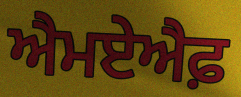
ਐਮਏਐਫ਼